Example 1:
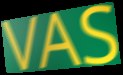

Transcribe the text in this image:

VAS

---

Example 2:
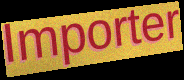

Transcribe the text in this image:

Importer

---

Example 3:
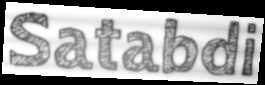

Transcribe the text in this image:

Satabdi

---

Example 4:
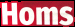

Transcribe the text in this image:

Homs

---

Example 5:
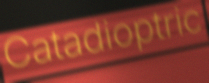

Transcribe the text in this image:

Catadioptric